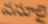
వసూలై